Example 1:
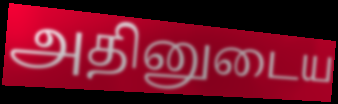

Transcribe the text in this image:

அதினுடைய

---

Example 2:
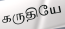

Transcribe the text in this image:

கருதியே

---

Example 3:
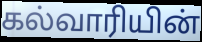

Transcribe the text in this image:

கல்வாரியின்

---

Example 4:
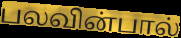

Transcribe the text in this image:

பலவின்பால்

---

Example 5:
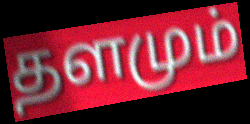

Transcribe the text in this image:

தளமும்